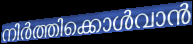
നിർത്തിക്കൊൾവാൻ